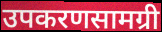
उपकरणसामग्री